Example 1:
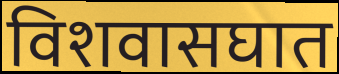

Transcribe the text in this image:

विशवासघात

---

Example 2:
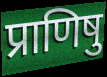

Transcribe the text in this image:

प्राणिषु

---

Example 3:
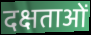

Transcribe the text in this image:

दक्षताओं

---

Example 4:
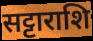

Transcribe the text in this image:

सट्टाराशि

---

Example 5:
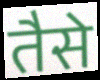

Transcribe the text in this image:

तैसे